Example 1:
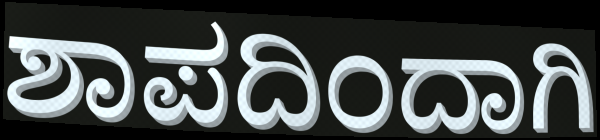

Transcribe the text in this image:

ಶಾಪದಿಂದಾಗಿ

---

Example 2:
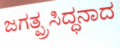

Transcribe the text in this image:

ಜಗತ್ಪ್ರಸಿದ್ಧನಾದ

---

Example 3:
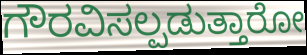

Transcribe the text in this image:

ಗೌರವಿಸಲ್ಪಡುತ್ತಾರೋ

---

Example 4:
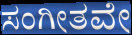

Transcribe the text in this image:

ಸಂಗೀತವೇ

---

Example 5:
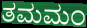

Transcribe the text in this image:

ತಮಮಂ